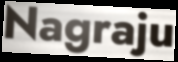
Nagraju